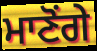
ਮਾਣੋਂਗੇ